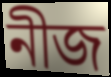
নীজ